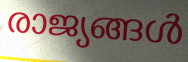
രാജ്യങ്ങൾ